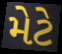
મેટે